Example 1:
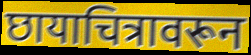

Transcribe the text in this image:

छायाचित्रावरून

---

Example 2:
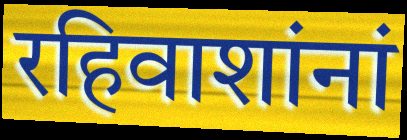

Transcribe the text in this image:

रहिवाशांनां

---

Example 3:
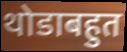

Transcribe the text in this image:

थोडाबहुत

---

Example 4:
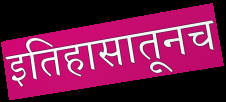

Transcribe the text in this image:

इतिहासातूनच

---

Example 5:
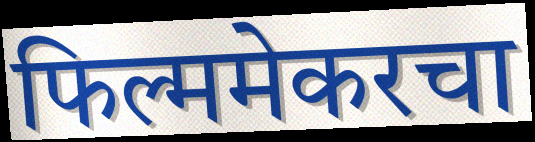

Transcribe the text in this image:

फिल्ममेकरचा